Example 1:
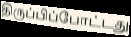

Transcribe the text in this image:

திருப்பிப்போட்டது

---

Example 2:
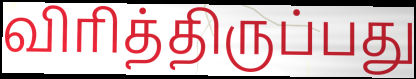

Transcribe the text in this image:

விரித்திருப்பது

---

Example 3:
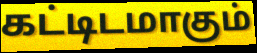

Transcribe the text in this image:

கட்டிடமாகும்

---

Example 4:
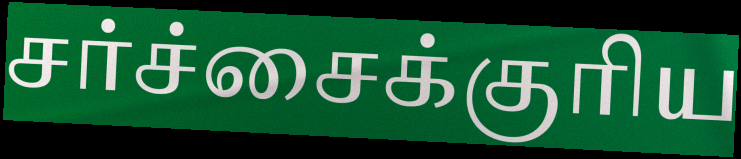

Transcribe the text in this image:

சர்ச்சைக்குரிய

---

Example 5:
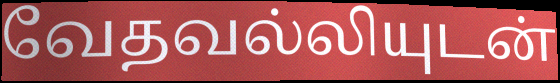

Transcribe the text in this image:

வேதவல்லியுடன்